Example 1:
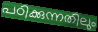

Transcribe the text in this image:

പഠിക്കുന്നതിലും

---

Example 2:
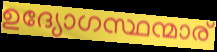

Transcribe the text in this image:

ഉദ്യോഗസ്ഥന്മാര്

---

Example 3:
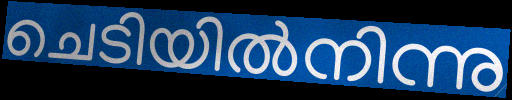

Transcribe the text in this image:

ചെടിയിൽനിന്നു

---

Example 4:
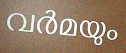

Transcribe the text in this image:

വർമയും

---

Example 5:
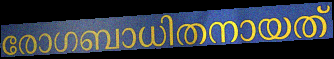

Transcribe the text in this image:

രോഗബാധിതനായത്